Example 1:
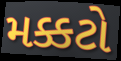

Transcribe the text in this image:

મક્કટો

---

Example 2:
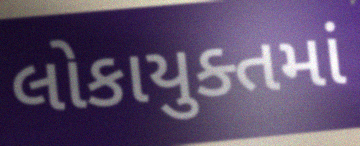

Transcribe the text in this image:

લોકાયુક્તમાં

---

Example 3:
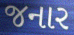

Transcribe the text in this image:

જનાર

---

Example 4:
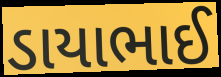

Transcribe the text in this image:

ડાયાભાઈ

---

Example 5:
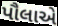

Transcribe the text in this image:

પૌલાએ